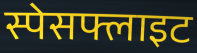
स्पेसफ्लाइट